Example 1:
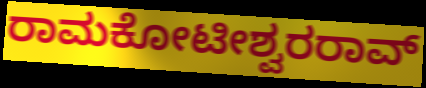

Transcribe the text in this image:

ರಾಮಕೋಟೀಶ್ವರರಾವ್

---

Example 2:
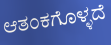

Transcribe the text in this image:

ಆತಂಕಗೊಳ್ಳದೆ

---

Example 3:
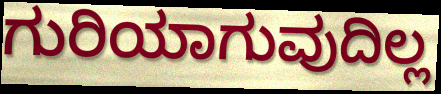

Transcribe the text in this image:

ಗುರಿಯಾಗುವುದಿಲ್ಲ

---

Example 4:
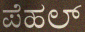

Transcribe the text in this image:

ಪೆಹಲ್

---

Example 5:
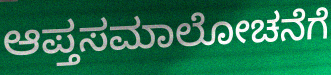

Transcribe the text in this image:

ಆಪ್ತಸಮಾಲೋಚನೆಗೆ